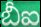
బీఐ